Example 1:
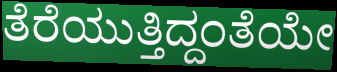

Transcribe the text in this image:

ತೆರೆಯುತ್ತಿದ್ದಂತೆಯೇ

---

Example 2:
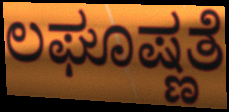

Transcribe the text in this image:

ಲಘೂಷ್ಣತೆ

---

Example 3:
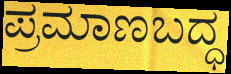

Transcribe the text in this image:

ಪ್ರಮಾಣಬದ್ಧ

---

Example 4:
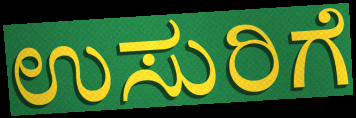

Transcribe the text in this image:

ಉಸುರಿಗೆ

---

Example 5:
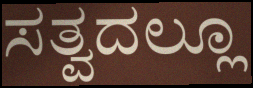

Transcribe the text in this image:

ಸತ್ವದಲ್ಲೂ